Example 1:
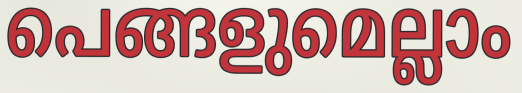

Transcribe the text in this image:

പെങ്ങളുമെല്ലാം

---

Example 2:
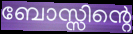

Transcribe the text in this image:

ബോസ്സിന്റെ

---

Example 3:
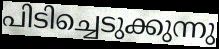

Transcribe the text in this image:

പിടിച്ചെടുക്കുന്നു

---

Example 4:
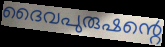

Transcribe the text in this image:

ദൈവപുരുഷന്റെ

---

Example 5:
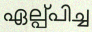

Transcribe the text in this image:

ഏല്പ്പിച്ച